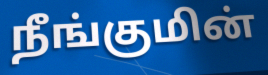
நீங்குமின்